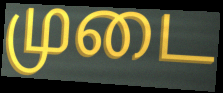
முடை